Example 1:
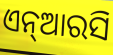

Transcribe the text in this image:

ଏନ୍ଆରସି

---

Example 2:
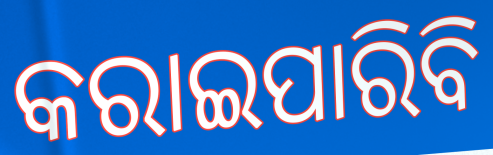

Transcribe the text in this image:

କରାଇପାରିବି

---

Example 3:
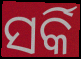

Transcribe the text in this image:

ସର୍କି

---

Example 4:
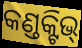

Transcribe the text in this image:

କଣ୍ଡକ୍ଟିଭ୍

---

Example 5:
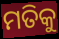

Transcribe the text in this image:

ମତିକୁ